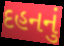
દહનનું